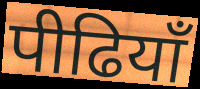
पीढियाँ